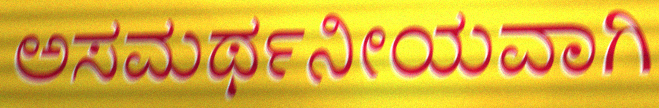
ಅಸಮರ್ಥನೀಯವಾಗಿ